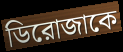
ডিরোজাকে